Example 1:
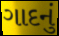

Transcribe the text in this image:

ગાદનું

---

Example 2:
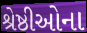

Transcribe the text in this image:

શ્રેષ્ઠીઓના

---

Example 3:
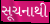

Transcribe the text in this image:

સૂચનાથી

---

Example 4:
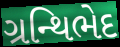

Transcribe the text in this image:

ગ્રન્થિભેદ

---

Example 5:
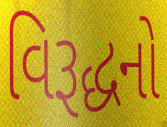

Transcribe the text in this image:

વિરૂદ્ધનો